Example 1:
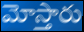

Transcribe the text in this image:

మోస్తారు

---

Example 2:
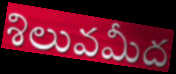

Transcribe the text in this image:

శిలువమీద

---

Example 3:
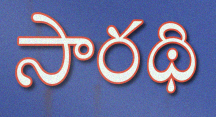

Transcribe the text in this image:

సారథి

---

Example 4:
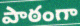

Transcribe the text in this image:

పాఠంగా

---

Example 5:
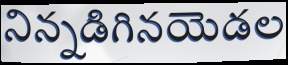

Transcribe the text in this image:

నిన్నడిగినయెడల